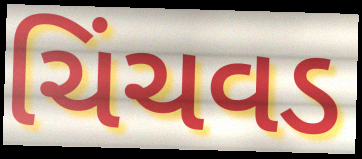
ચિંચવડ